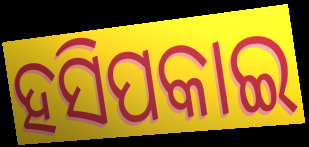
ହସିପକାଇ